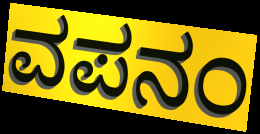
ವಪನಂ